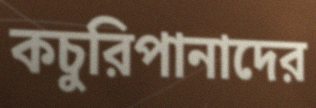
কচুরিপানাদের